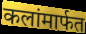
कलांमार्फत